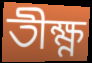
তীক্ষ্ণ